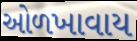
ઓળખાવાય